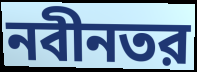
নবীনতর